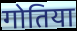
गोतिया